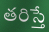
తరిస్తే